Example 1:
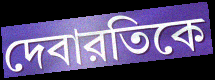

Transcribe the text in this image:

দেবারতিকে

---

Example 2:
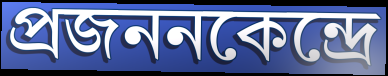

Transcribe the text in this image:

প্রজননকেন্দ্রে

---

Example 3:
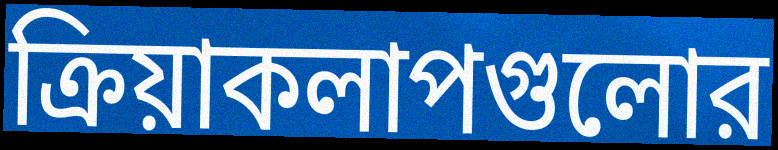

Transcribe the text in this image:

ক্রিয়াকলাপগুলোর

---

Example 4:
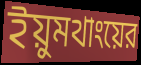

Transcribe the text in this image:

ইয়ুমথাংয়ের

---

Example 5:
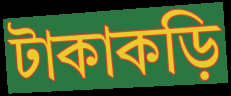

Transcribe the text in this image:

টাকাকড়ি